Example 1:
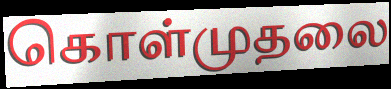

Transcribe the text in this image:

கொள்முதலை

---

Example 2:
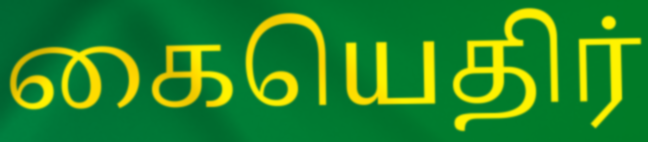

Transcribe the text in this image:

கையெதிர்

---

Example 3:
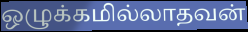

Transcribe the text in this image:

ஒழுக்கமில்லாதவன்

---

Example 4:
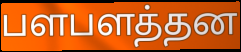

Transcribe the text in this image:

பளபளத்தன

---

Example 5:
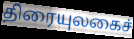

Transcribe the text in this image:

திரையுலகைச்